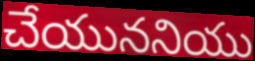
చేయుననియు